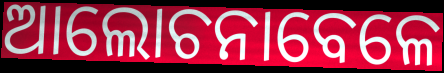
ଆଲୋଚନାବେଳେ